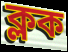
ক্লক